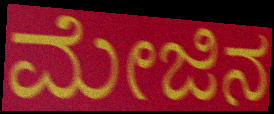
ಮೇಜಿನ